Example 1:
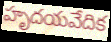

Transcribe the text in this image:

హృదయవేదిక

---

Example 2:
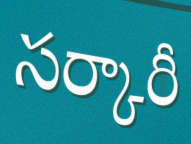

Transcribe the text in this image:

సర్కారీ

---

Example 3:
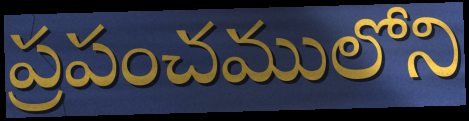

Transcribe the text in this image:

ప్రపంచములోని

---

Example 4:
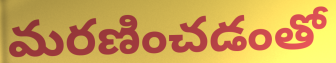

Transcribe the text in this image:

మరణించడంతో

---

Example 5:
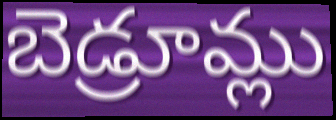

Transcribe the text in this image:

బెడ్రూమ్లు